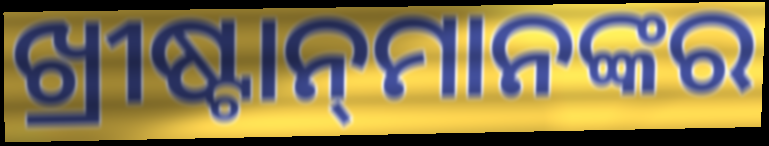
ଖ୍ରୀଷ୍ଟାନ୍‌ମାନଙ୍କର